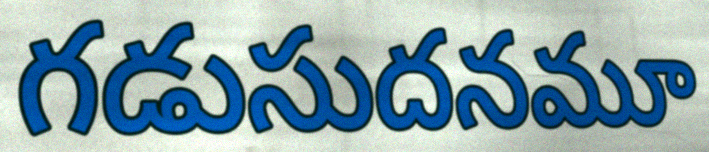
గడుసుదనమూ